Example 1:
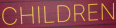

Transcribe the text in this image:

CHILDREN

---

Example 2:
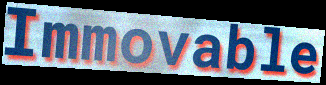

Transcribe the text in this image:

Immovable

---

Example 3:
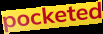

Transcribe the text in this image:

pocketed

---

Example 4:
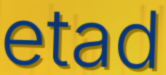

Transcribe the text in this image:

etad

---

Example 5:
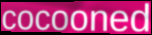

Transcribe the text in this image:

cocooned